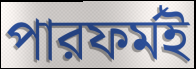
পারফর্মই